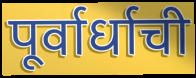
पूर्वार्धाची